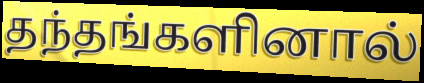
தந்தங்களினால்